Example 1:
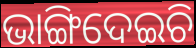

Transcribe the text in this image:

ଭାଙ୍ଗିଦେଇଚି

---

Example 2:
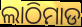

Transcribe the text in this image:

ଲାଠିମାଡ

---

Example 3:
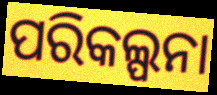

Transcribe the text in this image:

ପରିକଲ୍ପନା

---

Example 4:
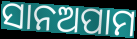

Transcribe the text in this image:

ସାନଅପାମ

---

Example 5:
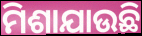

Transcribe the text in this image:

ମିଶାଯାଉଛି